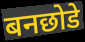
बनछोडे